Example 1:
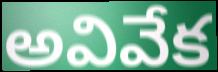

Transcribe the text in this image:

అవివేక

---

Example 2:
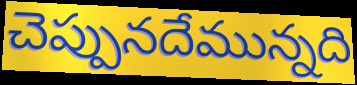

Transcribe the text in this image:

చెప్పునదేమున్నది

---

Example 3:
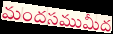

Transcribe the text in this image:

మందసముమీద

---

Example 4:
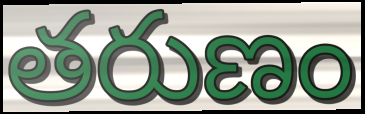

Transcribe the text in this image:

తరుణం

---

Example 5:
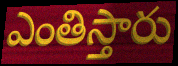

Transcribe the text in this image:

ఎంతిస్తారు